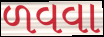
ળવવા